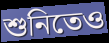
শুনিতেও